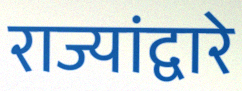
राज्यांद्वारे